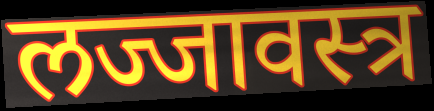
लज्जावस्त्र